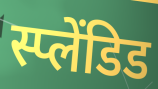
स्प्लेंडिड